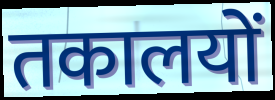
तकालयों